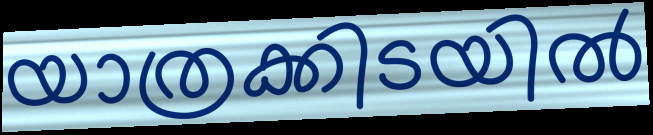
യാത്രക്കിടയിൽ